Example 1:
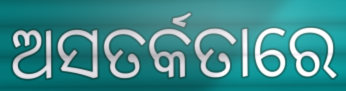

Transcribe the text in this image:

ଅସତର୍କତାରେ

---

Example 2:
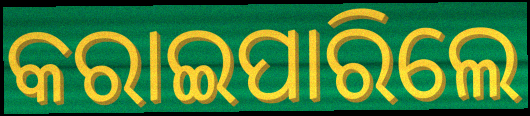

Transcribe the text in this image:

କରାଇପାରିଲେ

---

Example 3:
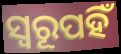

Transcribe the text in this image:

ସ୍ୱରୂପହିଁ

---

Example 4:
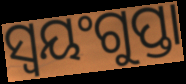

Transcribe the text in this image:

ସ୍ୱୟଂଗୁପ୍ତା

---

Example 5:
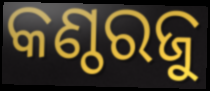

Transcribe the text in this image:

କଣ୍ଠରଜୁ